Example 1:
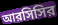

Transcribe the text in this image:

আরসিসির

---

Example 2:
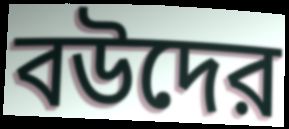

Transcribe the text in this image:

বউদের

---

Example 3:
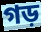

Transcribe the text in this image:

গড়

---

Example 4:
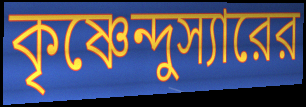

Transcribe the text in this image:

কৃষ্ণেন্দুস্যারের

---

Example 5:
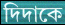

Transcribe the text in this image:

দিদাকে